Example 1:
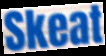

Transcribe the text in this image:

Skeat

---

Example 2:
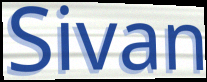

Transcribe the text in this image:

Sivan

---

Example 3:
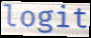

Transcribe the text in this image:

logit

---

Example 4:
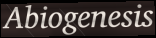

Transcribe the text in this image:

Abiogenesis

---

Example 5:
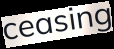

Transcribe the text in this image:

ceasing